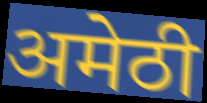
अमेठी